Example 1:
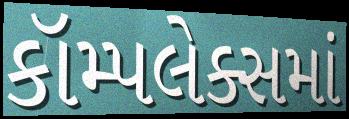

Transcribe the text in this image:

કૉમ્પલેક્સમાં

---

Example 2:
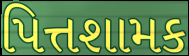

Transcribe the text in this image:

પિત્તશામક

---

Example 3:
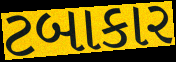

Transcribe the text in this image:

ટબાકાર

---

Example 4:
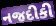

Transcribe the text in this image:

નજદીકી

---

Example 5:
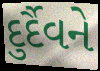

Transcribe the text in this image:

દુર્દૈવને